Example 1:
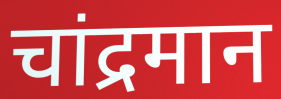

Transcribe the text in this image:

चांद्रमान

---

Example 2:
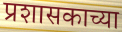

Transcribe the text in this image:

प्रशासकाच्या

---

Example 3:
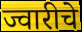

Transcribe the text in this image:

ज्वारीचे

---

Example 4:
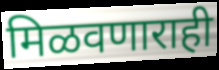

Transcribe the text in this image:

मिळवणाराही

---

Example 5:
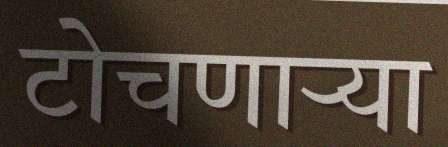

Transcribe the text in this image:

टोचणाऱ्या